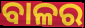
ବାଳର